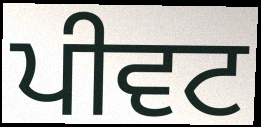
ਪੀਵਟ